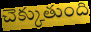
చెక్కుతుంది